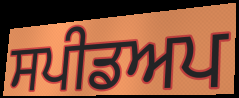
ਸਪੀਡਅਪ